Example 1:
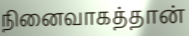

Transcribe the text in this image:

நினைவாகத்தான்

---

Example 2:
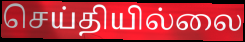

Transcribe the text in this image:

செய்தியில்லை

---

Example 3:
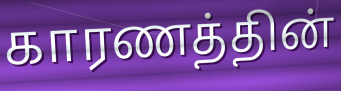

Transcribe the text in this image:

காரணத்தின்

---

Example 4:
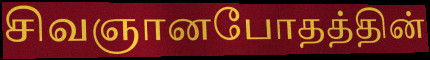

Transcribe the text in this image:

சிவஞானபோதத்தின்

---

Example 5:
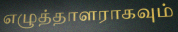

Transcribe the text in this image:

எழுத்தாளராகவும்